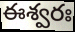
ఈశ్వరః